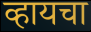
व्हायचा